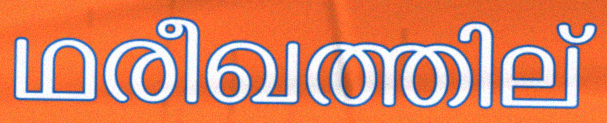
ഥരീഖത്തില്